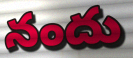
నందు